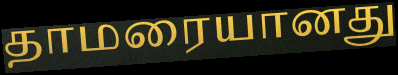
தாமரையானது